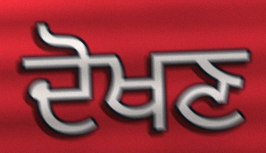
ਦੋਖਣ